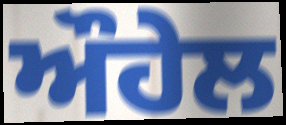
ਔਹੇਲ